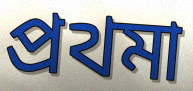
প্ৰথমা